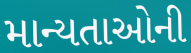
માન્યતાઓની